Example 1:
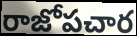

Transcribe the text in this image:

రాజోపచార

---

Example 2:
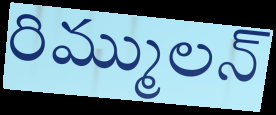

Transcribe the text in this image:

రిమ్ములన్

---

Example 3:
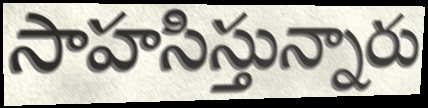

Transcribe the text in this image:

సాహసిస్తున్నారు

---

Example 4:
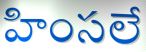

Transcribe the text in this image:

హింసలే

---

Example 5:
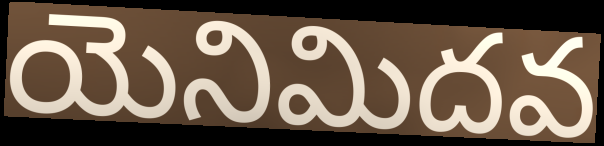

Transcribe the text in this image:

యెనిమిదవ